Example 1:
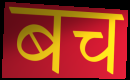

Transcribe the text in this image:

बच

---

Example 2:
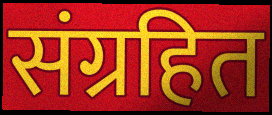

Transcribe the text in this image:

संग्रहित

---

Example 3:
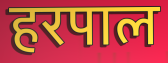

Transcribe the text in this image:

हरपाल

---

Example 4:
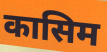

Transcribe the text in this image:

कासिम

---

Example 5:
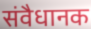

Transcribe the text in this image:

संवैधानक